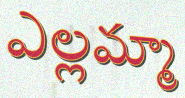
ఎల్లమ్మా